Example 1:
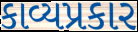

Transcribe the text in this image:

કાવ્યપ્રકાર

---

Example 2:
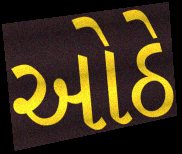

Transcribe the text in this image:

ઓઠે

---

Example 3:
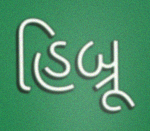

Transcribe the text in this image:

હિબ્રૂ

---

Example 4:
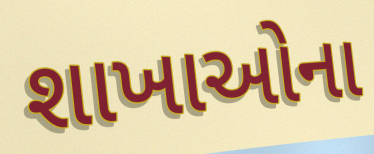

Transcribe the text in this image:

શાખાઓના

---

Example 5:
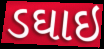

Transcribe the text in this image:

ડઘાઇ